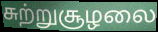
சுற்றுசூழலை